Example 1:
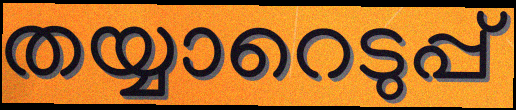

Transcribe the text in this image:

തയ്യാറെടുപ്പ്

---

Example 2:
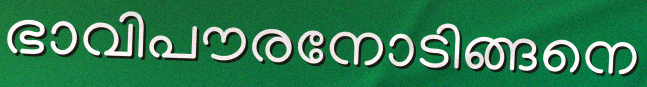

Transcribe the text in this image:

ഭാവിപൗരനോടിങ്ങനെ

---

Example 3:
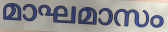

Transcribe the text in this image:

മാഘമാസം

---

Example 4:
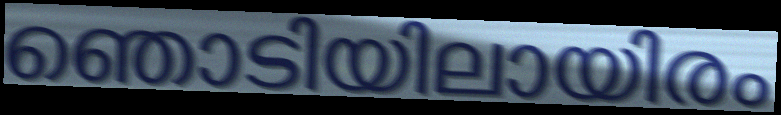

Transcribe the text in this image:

ഞൊടിയിലായിരം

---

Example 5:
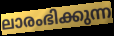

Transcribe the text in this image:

ലാരംഭിക്കുന്ന